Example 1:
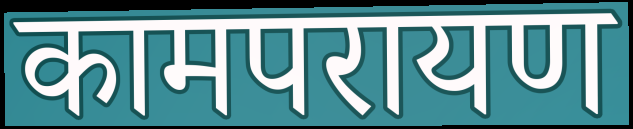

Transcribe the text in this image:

कामपरायण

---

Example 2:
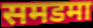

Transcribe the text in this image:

समडमा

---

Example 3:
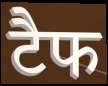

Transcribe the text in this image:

टैफ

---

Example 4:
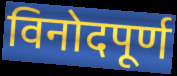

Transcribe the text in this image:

विनोदपूर्ण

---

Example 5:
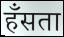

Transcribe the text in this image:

हॅंसता